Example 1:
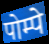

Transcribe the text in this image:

पोम्पे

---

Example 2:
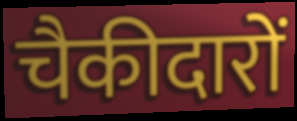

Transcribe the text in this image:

चैकीदारों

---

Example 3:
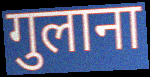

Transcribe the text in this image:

गुलाना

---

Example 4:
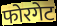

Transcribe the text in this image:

फोरगेट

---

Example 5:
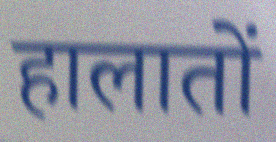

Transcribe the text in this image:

हालातों